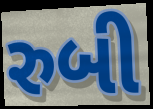
રુબી